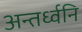
अन्तर्ध्वनि